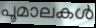
പൂമാലകൾ